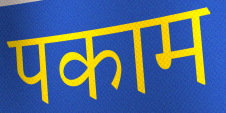
पकाम